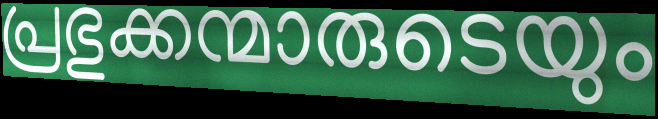
പ്രഭുക്കന്മാരുടെയും